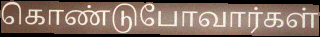
கொண்டுபோவார்கள்